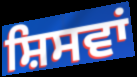
ਸ਼ਿਸਵਾਂ